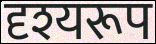
दृश्यरूप